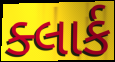
ક્લાર્ક